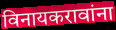
विनायकरावांना